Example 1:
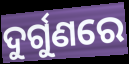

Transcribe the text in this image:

ଦୁର୍ଗୁଣରେ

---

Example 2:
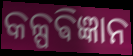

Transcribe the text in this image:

କଳ୍ପଵିଜ୍ଞାନ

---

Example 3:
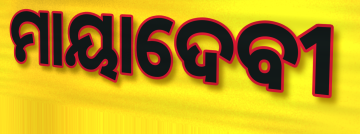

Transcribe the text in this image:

ମାୟାଦେବୀ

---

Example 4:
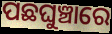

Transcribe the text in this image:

ପଛଘୁଞ୍ଚାରେ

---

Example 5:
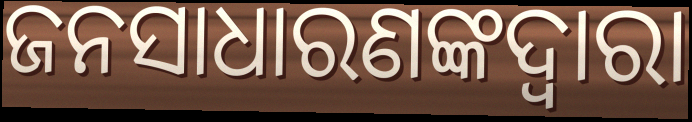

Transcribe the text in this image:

ଜନସାଧାରଣଙ୍କଦ୍ବାରା